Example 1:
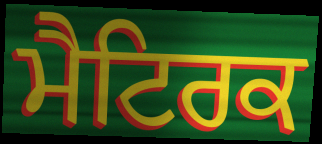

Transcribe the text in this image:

ਮੈਟਿਰਕ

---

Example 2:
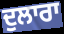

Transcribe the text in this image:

ਦੁਲਾਰਾ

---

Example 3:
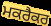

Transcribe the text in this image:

ਮਕਰੈਕਰ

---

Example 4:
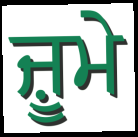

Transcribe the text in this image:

ਜ਼ੂਮੇ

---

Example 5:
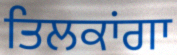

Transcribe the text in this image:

ਤਿਲਕਾਂਗਾ